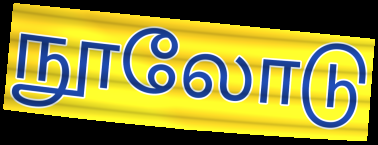
நூலோடு